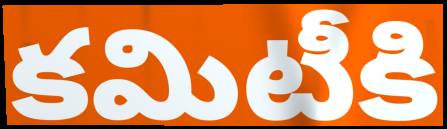
కమిటీకి